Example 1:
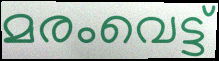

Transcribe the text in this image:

മരംവെട്ട്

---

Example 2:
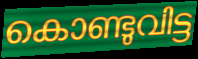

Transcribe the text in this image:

കൊണ്ടുവിട്ട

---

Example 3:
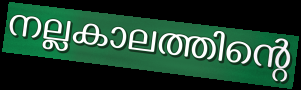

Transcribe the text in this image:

നല്ലകാലത്തിന്റെ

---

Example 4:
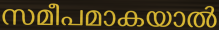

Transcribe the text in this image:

സമീപമാകയാൽ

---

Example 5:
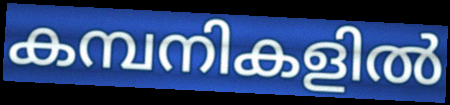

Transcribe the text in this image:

കമ്പനികളിൽ